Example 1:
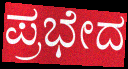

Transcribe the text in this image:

ಪ್ರಭೇದ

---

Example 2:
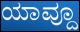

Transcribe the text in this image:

ಯಾವ್ದೂ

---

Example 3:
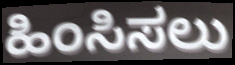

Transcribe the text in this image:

ಹಿಂಸಿಸಲು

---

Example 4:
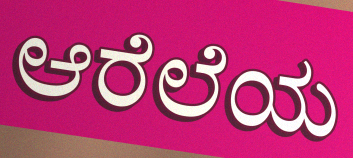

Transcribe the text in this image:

ಆರೆಲೆಯ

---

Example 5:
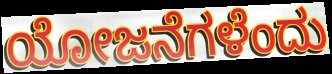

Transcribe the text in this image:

ಯೋಜನೆಗಳೆಂದು